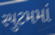
સ્પુટમમાં